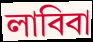
লাবিবা